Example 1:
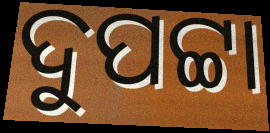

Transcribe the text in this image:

ଦୁପଟ୍ଟା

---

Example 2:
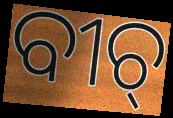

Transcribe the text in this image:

ବୀଚ୍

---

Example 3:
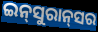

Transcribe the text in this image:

ଇନ୍‍ସୁରାନ୍‍ସର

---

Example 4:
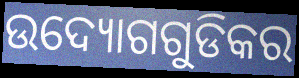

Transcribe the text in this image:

ଉଦ୍ୟୋଗଗୁଡିକର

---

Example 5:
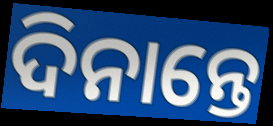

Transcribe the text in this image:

ଦିନାନ୍ତେ